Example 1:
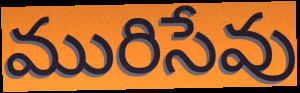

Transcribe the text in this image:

మురిసేవు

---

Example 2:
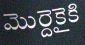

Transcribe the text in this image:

మొర్దెకైకి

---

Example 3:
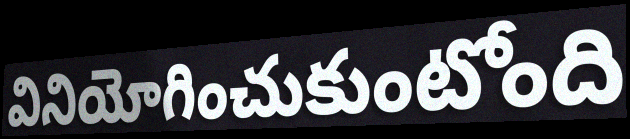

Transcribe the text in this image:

వినియోగించుకుంటోంది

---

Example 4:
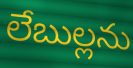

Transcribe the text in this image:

లేబుల్లను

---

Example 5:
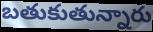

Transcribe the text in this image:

బతుకుతున్నారు